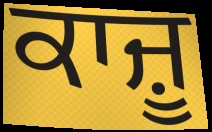
ਕਾਜ਼ੂ